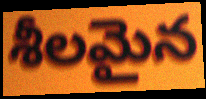
శీలమైన